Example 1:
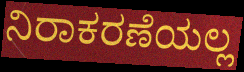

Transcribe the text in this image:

ನಿರಾಕರಣೆಯಲ್ಲ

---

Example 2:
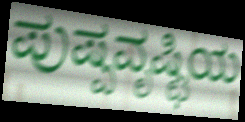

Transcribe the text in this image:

ಪುಷ್ಪವೃಷ್ಟಿಯ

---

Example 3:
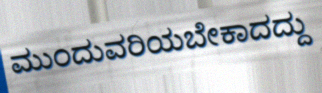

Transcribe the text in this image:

ಮುಂದುವರಿಯಬೇಕಾದದ್ದು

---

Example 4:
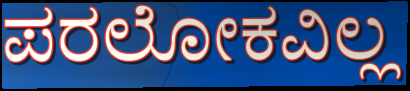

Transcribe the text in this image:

ಪರಲೋಕವಿಲ್ಲ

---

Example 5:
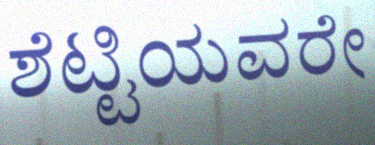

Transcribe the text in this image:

ಶೆಟ್ಟಿಯವರೇ